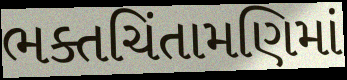
ભક્તચિંતામણિમાં